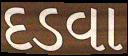
દડવા